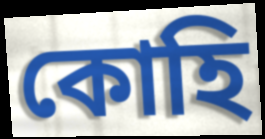
কোহি